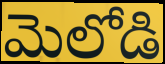
మెలోడి